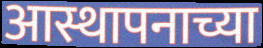
आस्थापनाच्या